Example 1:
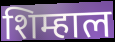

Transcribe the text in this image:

शिम्हाल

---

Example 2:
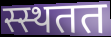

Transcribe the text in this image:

स्स्थतत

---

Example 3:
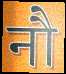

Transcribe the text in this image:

नौ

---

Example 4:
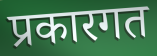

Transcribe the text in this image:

प्रकारगत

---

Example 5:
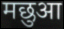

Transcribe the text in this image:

मछुआ